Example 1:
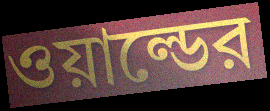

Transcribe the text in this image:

ওয়াল্ডের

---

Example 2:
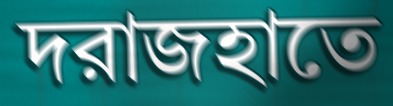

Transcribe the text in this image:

দরাজহাতে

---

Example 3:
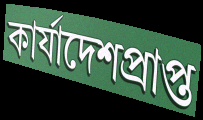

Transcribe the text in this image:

কার্যাদেশপ্রাপ্ত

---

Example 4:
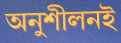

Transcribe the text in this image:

অনুশীলনই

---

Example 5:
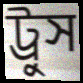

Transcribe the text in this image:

ট্রুস